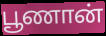
பூணான்